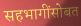
सहभागींसोबत